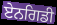
ਏਨਗਿਡੀ